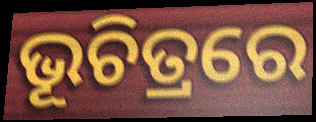
ଭୂଚିତ୍ରରେ